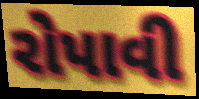
રોપાવી